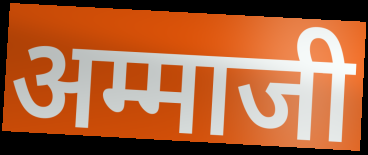
अम्माजी